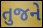
તુજને